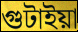
গুটাইয়া